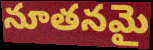
నూతనమై